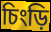
চিংড়ি